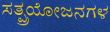
ಸತ್ಪ್ರಯೋಜನಗಳ